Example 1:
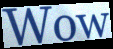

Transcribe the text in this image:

Wow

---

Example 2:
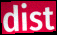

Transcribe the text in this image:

dist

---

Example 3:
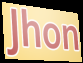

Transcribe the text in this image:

Jhon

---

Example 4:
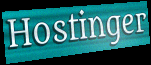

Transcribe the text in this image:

Hostinger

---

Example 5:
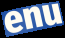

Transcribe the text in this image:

enu